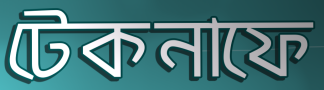
টেকনাফে